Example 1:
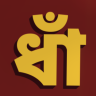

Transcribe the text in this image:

ধাঁ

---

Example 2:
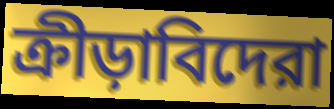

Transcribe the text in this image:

ক্রীড়াবিদেরা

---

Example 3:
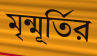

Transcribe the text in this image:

মৃন্মূর্তির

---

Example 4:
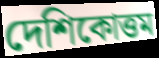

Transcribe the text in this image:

দেশিকোত্তম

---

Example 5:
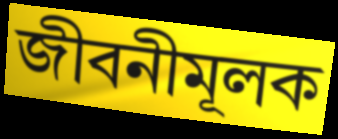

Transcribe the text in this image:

জীবনীমূলক